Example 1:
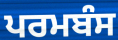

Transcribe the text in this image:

ਪਰਮਬੰਸ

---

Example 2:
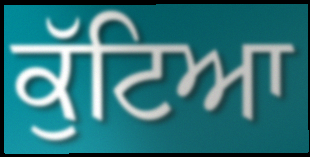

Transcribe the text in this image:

ਕੁੱਟਿਆ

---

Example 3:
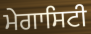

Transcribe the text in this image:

ਮੇਗਾਸਿਟੀ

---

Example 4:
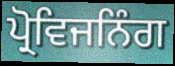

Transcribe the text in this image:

ਪ੍ਰੋਵਿਜਨਿੰਗ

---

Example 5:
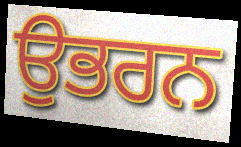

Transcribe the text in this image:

ਉਭਰਨ